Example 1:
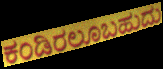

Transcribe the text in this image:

ಕಂಡಿರಲೂಬಹುದು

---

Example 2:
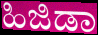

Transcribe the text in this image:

ಹಿಜಿಡಾ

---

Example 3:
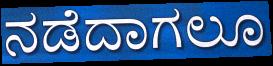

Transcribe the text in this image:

ನಡೆದಾಗಲೂ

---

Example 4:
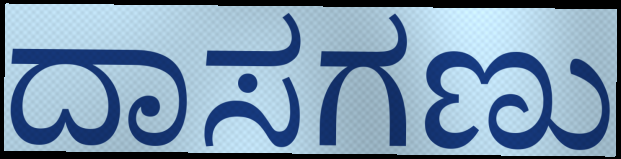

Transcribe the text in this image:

ದಾಸಗಣು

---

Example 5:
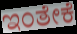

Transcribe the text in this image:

ಇಂತೇಕೆ